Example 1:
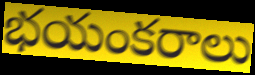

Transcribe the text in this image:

భయంకరాలు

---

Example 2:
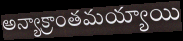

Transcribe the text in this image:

అన్యాక్రాంతమయ్యాయి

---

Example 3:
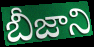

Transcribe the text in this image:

బీజాని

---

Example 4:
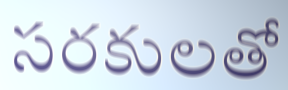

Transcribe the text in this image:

సరకులతో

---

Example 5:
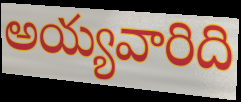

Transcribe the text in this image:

అయ్యవారిది